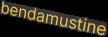
bendamustine